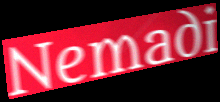
Nemadi